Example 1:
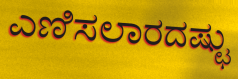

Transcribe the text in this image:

ಎಣಿಸಲಾರದಷ್ಟು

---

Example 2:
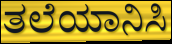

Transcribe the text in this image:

ತಲೆಯಾನಿಸಿ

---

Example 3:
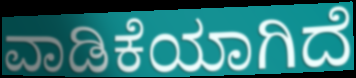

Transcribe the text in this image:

ವಾಡಿಕೆಯಾಗಿದೆ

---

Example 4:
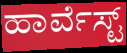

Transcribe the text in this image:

ಹಾರ್ವೆಸ್ಟ್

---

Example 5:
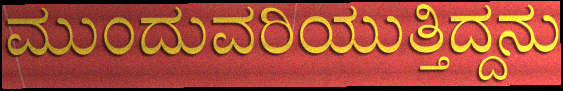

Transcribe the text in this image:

ಮುಂದುವರಿಯುತ್ತಿದ್ದನು